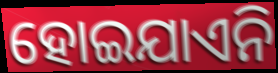
ହୋଇଯାଏନି